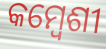
କମ୍ବେଶୀ